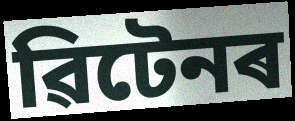
ৱিটেনৰ